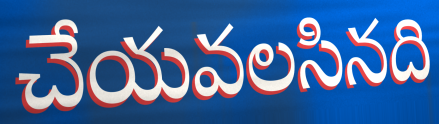
చేయవలసినది